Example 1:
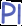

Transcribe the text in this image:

Pl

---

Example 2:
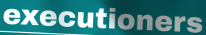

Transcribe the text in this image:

executioners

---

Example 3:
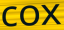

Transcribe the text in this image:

cox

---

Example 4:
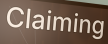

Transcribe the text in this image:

Claiming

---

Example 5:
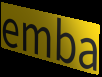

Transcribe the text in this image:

emba